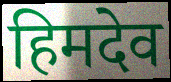
हिमदेव